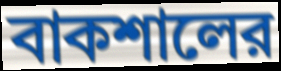
বাকশালের